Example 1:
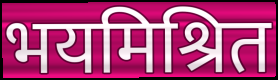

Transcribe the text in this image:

भयमिश्रित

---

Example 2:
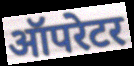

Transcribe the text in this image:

ऑपरेटर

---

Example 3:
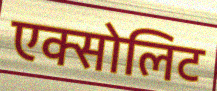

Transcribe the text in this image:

एक्सोलिट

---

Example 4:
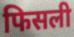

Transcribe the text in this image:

फिसली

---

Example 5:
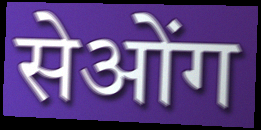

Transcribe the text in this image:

सेओंग